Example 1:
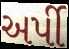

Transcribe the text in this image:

અર્પી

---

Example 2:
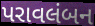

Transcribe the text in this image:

પરાવલંબન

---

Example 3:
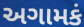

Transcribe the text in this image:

અગામકં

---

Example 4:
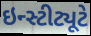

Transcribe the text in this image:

ઇન્સ્ટીટ્યૂટે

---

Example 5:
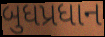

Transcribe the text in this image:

બુધપ્રધાન